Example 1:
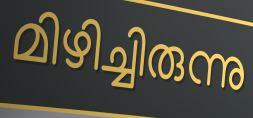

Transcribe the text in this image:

മിഴിച്ചിരുന്നു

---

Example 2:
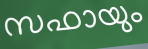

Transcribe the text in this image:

സഫായും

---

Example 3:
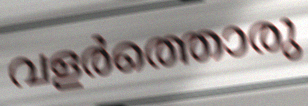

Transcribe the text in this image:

വളർത്തൊരു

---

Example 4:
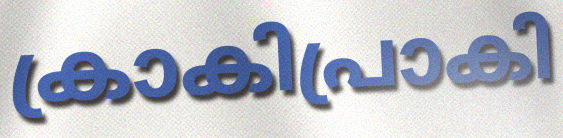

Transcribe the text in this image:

ക്രാകിപ്രാകി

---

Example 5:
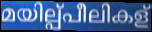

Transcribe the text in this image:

മയില്പ്പീലികള്